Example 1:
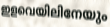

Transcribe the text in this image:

ഇളവെയിലിനേയും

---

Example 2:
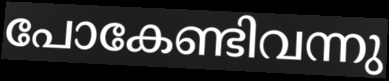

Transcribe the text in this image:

പോകേണ്ടിവന്നു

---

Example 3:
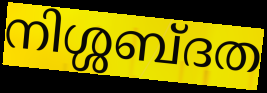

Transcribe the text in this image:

നിശ്ശബ്ദത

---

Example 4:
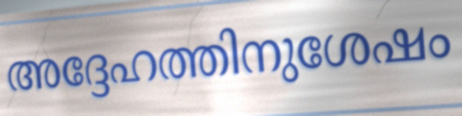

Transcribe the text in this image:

അദ്ദേഹത്തിനുശേഷം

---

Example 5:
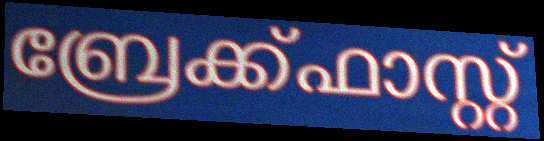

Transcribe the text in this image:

ബ്രേക്ക്ഫാസ്റ്റ്